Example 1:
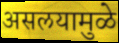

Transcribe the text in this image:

असलयामुळे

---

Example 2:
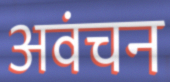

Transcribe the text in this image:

अवंचन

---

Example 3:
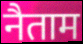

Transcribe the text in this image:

नैताम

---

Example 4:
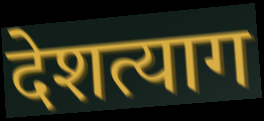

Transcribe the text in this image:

देशत्याग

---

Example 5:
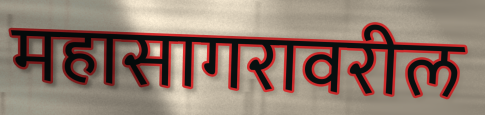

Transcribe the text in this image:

महासागरावरील